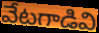
వేటగాడివి